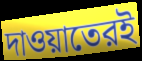
দাওয়াতেরই